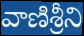
వాణిశ్రీని